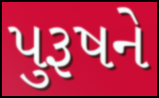
પુરૂષને